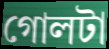
গোলটা